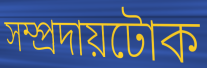
সম্প্ৰদায়টোক